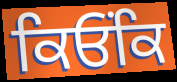
ਕਿਓਂਕਿ